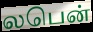
லபென்